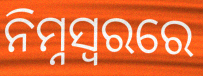
ନିମ୍ନସ୍ଵରରେ